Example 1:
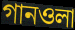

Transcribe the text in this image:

গানওলা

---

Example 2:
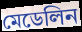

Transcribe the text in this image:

মেডেলিন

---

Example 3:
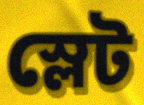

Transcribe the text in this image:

স্লেট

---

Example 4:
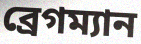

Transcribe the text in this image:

ব্রেগম্যান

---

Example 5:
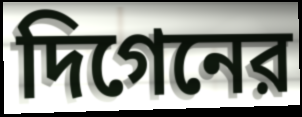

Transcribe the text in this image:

দিগেনের